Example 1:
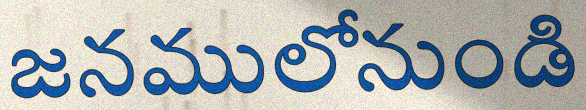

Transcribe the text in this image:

జనములోనుండి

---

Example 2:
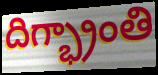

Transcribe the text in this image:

దిగ్భ్రాంతి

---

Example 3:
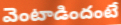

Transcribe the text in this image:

వెంటాడిందంటే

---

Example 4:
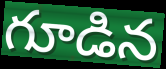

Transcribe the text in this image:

గూడిన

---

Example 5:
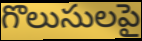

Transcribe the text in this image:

గొలుసులపై